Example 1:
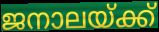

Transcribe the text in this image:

ജനാലയ്ക്ക്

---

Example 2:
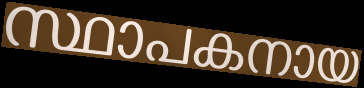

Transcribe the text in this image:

സ്ഥാപകനായ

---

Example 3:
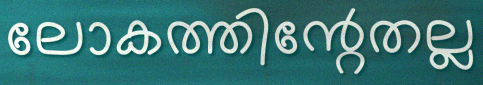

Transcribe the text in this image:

ലോകത്തിന്റേതല്ല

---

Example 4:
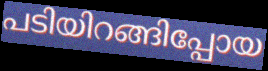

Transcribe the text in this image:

പടിയിറങ്ങിപ്പോയ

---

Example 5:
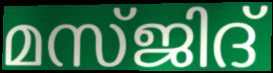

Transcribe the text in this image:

മസ്ജിദ്